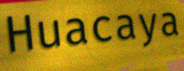
Huacaya